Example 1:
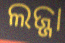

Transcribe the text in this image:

ଲଜ୍ଜା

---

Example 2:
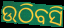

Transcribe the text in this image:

ଉଠିବସି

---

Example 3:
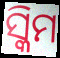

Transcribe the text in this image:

ସ୍କିମ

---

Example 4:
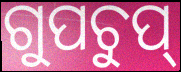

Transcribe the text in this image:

ଗୁପଚୁପ୍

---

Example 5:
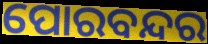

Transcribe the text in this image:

ପୋରବନ୍ଦର